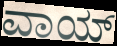
ವಾಯ್